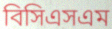
বিসিএসএম